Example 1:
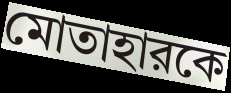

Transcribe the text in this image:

মোতাহারকে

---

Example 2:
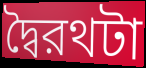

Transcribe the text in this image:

দ্বৈরথটা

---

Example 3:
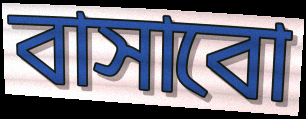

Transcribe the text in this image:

বাসাবো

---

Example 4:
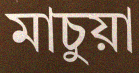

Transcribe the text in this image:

মাচুয়া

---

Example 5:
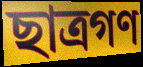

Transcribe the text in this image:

ছাত্রগণ